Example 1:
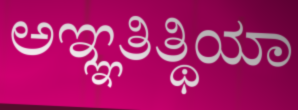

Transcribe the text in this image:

ಅಞ್ಞತಿತ್ಥಿಯಾ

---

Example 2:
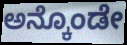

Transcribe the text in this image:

ಅನ್ಕೊಂಡೇ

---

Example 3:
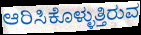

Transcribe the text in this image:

ಆರಿಸಿಕೊಳ್ಳುತ್ತಿರುವ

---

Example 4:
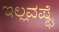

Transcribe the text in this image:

ಇಲ್ಲವಷ್ಟೆ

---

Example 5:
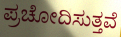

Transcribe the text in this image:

ಪ್ರಚೋದಿಸುತ್ತವೆ